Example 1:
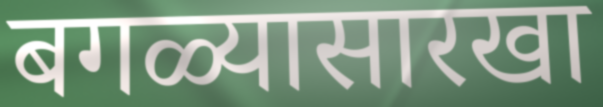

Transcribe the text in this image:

बगळ्यासारखा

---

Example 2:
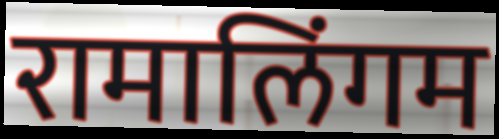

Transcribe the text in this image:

रामालिंगम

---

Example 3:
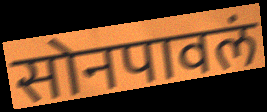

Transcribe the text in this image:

सोनपावलं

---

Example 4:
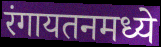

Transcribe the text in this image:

रंगायतनमध्ये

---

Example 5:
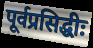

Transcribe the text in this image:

पूर्वप्रसिद्धीः